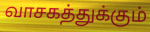
வாசகத்துக்கும்